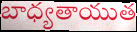
బాధ్యతాయుత